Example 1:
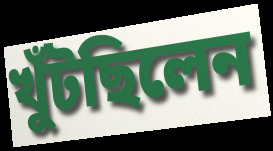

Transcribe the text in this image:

খুঁটছিলেন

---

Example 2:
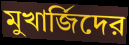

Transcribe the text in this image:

মুখার্জিদের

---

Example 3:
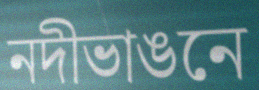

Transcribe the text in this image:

নদীভাঙনে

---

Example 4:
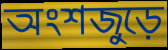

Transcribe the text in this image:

অংশজুড়ে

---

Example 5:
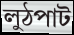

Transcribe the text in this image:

লুঠপাট